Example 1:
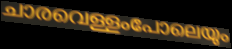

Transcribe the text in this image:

ചാരവെള്ളംപോലെയും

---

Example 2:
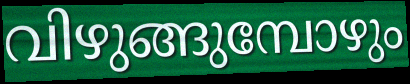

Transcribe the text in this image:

വിഴുങ്ങുമ്പോഴും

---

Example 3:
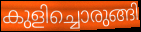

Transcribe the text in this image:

കുളിച്ചൊരുങ്ങി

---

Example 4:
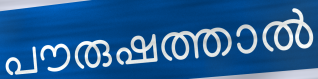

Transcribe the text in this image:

പൗരുഷത്താൽ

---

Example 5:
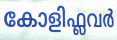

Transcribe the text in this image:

കോളിഫ്ലവർ